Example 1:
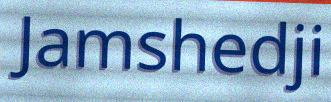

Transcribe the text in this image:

Jamshedji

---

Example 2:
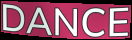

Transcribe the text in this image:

DANCE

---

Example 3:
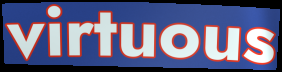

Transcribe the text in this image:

virtuous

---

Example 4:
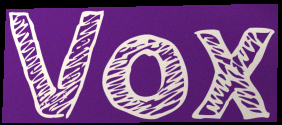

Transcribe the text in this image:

Vox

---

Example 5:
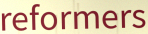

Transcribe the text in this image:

reformers